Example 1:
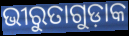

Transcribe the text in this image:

ଭୀରୁତାଗୁଡ଼ାକ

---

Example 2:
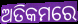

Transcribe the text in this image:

ଅତିକମରେ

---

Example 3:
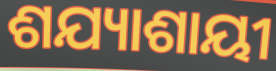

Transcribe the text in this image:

ଶଯ୍ୟାଶାୟୀ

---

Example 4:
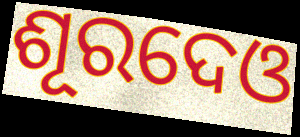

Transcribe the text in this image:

ଶୂରଦେଓ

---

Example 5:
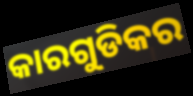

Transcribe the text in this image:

କାରଗୁଡିକର